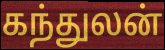
கந்துலன்